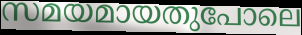
സമയമായതുപോലെ